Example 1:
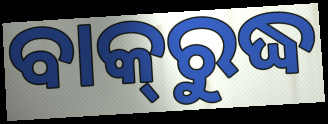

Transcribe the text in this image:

ବାକ୍‌ରୁଦ୍ଧ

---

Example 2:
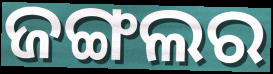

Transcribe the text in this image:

ଜଙ୍ଗଲର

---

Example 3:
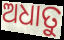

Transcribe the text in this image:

ଅଧାତୁ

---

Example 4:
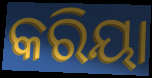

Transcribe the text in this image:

କରିୟା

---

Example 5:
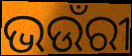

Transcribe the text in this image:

ଭଉଁରୀ